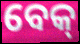
ବେକ୍